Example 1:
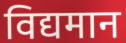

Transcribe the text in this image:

विद्यमान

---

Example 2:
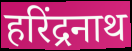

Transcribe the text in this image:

हरिंद्रनाथ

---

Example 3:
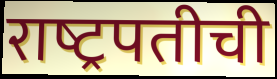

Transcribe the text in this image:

राष्ट्रपतीची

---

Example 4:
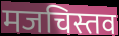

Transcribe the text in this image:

मजचिस्तव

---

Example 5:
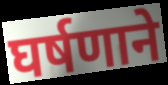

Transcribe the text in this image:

घर्षणाने